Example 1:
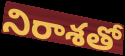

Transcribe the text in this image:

నిరాశతో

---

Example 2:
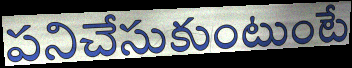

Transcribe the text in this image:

పనిచేసుకుంటుంటే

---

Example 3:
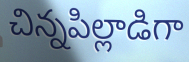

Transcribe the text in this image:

చిన్నపిల్లాడిగా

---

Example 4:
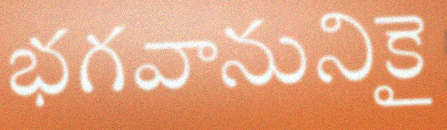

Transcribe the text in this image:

భగవానునికై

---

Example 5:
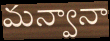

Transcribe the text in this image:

మన్వానా